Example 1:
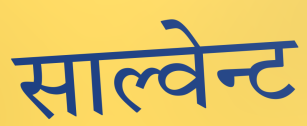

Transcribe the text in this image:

साल्वेन्ट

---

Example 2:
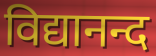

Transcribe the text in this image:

विद्यानन्द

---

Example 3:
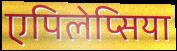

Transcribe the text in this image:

एपिलेप्सिया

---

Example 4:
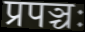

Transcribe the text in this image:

प्रपञ्चः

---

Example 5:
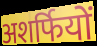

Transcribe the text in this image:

अशर्फियों